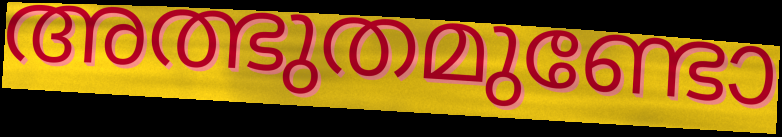
അത്ഭുതമുണ്ടോ